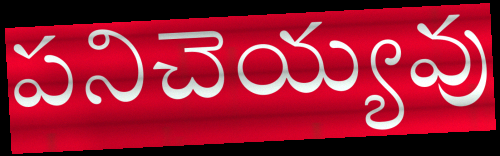
పనిచెయ్యవు